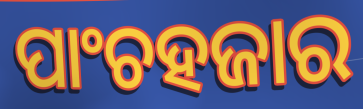
ପାଂଚହଜାର